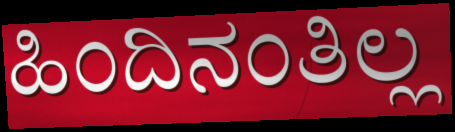
ಹಿಂದಿನಂತಿಲ್ಲ